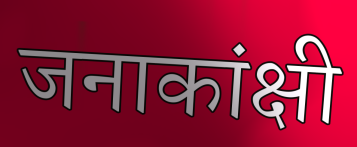
जनाकांक्षी